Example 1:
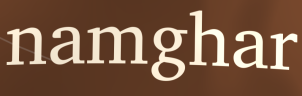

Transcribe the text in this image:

namghar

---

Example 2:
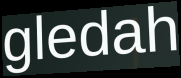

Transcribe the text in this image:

gledah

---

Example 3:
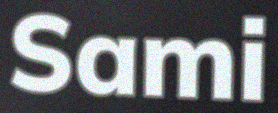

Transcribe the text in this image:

Sami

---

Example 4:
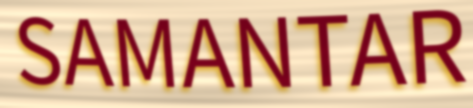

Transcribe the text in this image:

SAMANTAR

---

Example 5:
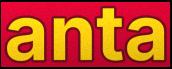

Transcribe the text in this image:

anta